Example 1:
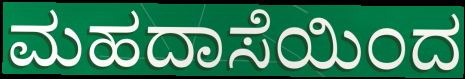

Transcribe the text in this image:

ಮಹದಾಸೆಯಿಂದ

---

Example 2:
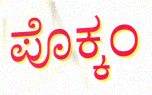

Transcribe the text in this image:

ಪೊಕ್ಕಂ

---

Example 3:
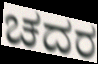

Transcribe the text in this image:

ಚದರ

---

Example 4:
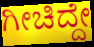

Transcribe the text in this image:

ಗೀಚಿದ್ದೇ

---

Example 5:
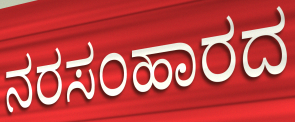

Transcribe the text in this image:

ನರಸಂಹಾರದ